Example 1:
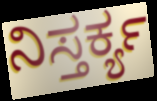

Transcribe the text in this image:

ನಿಸ್ತರ್ಕ್ಯ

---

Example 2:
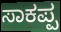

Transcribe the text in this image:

ಸಾಕಪ್ಪ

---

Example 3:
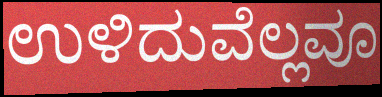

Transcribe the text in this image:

ಉಳಿದುವೆಲ್ಲವೂ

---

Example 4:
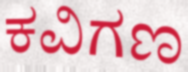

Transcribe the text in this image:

ಕವಿಗಣ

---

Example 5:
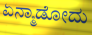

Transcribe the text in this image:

ಏನ್ಮಾಡೋದು